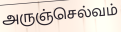
அருஞ்செல்வம்